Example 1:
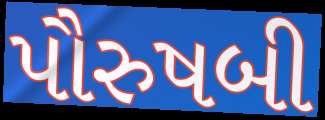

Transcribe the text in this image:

પૌરુષબી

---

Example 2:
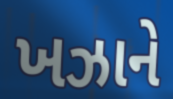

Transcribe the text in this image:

ખઝાને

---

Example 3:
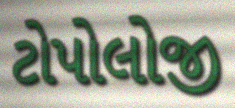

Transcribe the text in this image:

ટોપોલોજી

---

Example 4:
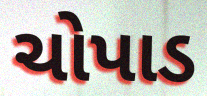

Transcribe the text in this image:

ચોપાડ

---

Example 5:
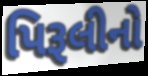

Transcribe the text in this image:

પિરૂલીનો